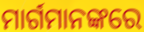
ମାର୍ଗମାନଙ୍କରେ